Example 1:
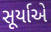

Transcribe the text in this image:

સૂર્યાએ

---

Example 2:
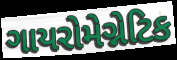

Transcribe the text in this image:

ગાયરોમેગ્નેટિક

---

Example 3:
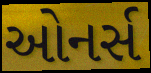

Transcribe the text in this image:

ઓનર્સ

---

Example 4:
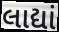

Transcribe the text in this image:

લાદ્યાં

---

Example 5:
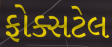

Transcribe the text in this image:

ફોક્સટેલ